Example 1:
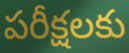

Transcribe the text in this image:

పరీక్షలకు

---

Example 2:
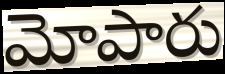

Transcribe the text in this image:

మోపారు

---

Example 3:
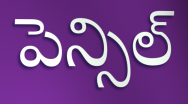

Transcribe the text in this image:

పెన్సిల్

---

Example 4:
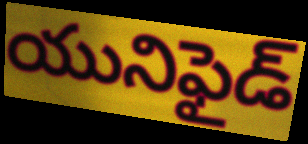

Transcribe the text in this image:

యునిఫైడ్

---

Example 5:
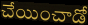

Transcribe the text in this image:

చేయించాడో